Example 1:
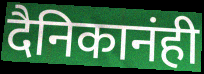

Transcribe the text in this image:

दैनिकानंही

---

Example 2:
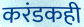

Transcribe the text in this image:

करंडकही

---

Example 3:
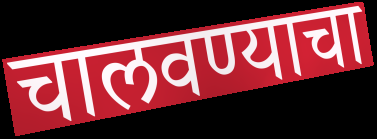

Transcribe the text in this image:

चालवण्याचा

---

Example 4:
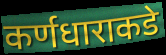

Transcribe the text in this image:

कर्णधाराकडे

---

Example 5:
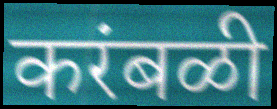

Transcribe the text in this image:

करंबळी